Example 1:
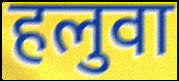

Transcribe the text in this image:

हलुवा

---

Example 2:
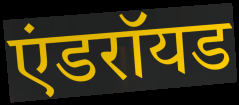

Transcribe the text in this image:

एंडरॉयड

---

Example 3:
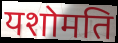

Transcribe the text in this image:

यशोमति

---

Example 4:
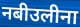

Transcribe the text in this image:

नबीउलीना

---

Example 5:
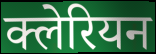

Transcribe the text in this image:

क्लेरियन